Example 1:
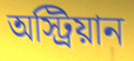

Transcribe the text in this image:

অস্ট্রিয়ান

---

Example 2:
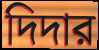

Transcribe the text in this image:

দিদার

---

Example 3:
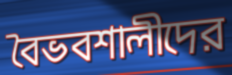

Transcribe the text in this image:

বৈভবশালীদের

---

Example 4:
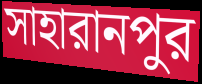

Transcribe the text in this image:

সাহারানপুর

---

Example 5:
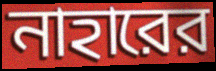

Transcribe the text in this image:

নাহারের